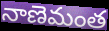
నాణెమంత